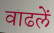
वाढलें